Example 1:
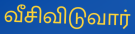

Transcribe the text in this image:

வீசிவிடுவார்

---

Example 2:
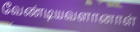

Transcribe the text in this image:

வேண்டியவளானாள்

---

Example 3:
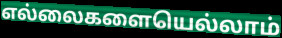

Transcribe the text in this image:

எல்லைகளையெல்லாம்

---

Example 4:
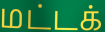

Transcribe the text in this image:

மட்டக்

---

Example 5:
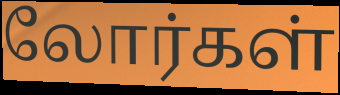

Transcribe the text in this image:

லோர்கள்